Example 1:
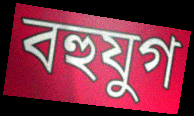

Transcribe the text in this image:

বহুযুগ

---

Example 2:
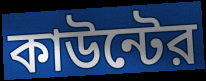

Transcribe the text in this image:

কাউন্টের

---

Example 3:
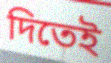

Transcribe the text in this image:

দিতেই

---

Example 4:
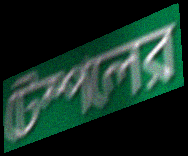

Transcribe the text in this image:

টেম্পলের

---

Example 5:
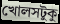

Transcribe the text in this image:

খোলসটুকু